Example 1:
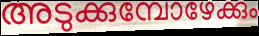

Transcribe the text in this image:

അടുക്കുമ്പോഴേക്കും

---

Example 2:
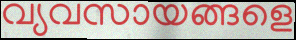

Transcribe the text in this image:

വ്യവസായങ്ങളെ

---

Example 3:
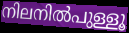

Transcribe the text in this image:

നിലനിൽപുള്ളൂ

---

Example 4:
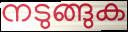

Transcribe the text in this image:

നടുങ്ങുക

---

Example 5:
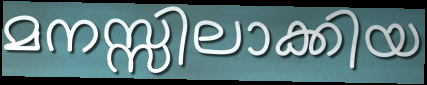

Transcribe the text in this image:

മനസ്സിലാക്കിയ